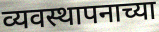
व्यवस्थापनाच्या